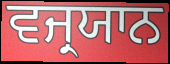
ਵਜ੍ਰਯਾਨ